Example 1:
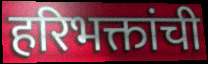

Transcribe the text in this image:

हरिभक्तांची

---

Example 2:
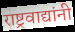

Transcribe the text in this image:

राष्ट्रवाद्यांनी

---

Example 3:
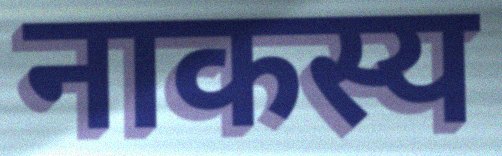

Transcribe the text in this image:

नाकस्य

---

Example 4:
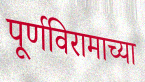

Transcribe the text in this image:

पूर्णविरामाच्या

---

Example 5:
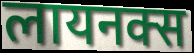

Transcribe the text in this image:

लायनक्स